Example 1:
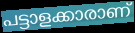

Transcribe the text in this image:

പട്ടാളക്കാരാണ്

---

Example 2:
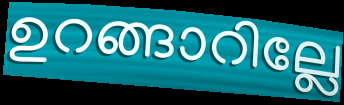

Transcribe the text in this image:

ഉറങ്ങാറില്ലേ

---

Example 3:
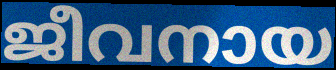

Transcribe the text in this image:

ജീവനായ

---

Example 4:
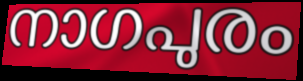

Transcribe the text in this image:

നാഗപുരം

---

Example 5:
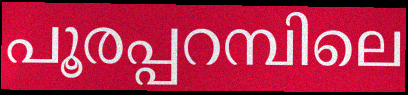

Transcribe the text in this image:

പൂരപ്പറമ്പിലെ